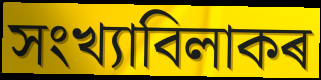
সংখ্যাবিলাকৰ